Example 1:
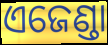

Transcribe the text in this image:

ଏଜେଣ୍ଡା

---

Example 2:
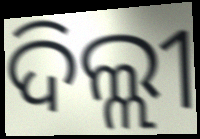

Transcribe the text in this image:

ଦିଲ୍ଲୀ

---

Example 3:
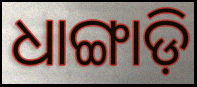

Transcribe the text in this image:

ଧାଙ୍ଗାଡ଼ି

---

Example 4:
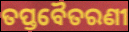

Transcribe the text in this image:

ତପ୍ତବୈତରଣୀ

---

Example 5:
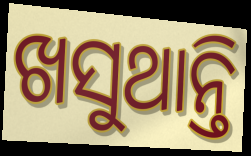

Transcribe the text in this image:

ଖସୁଥାନ୍ତି